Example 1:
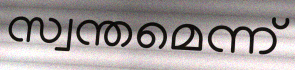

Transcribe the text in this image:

സ്വന്തമെന്ന്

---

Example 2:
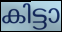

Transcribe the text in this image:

കിട്ടാ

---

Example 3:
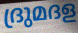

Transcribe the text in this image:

ദ്രുമദള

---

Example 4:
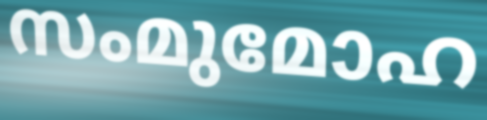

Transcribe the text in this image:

സംമുമോഹ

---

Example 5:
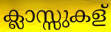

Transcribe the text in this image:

ക്ലാസ്സുകള്